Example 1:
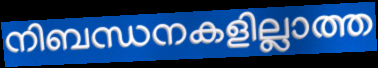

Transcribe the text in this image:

നിബന്ധനകളില്ലാത്ത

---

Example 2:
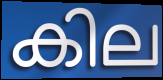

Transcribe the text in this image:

കില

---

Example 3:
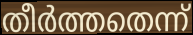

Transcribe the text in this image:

തീർത്തതെന്ന്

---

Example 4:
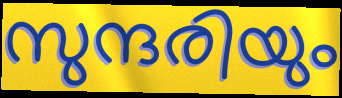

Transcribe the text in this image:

സുന്ദരിയും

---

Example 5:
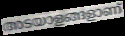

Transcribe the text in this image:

അടയാളങ്ങളാണ്